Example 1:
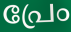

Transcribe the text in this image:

പ്രേം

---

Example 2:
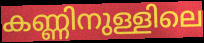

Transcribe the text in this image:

കണ്ണിനുള്ളിലെ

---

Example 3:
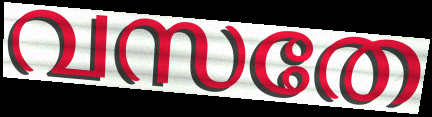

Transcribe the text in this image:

വസതേ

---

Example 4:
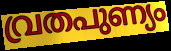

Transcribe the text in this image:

വ്രതപുണ്യം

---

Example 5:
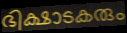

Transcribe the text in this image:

ഭിക്ഷാടകരും